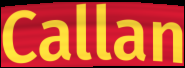
Callan